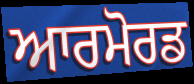
ਆਰਮੋਰਡ